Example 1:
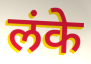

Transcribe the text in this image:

लंके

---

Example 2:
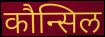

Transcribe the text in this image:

कौन्सिल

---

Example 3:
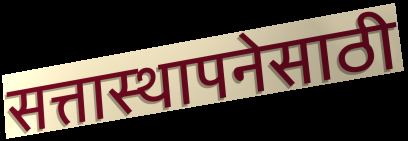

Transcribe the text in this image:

सत्तास्थापनेसाठी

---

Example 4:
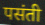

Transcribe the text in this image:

पसंती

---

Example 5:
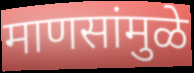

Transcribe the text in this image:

माणसांमुळे